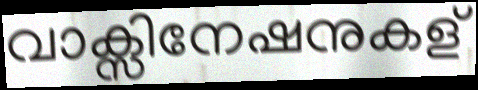
വാക്സിനേഷനുകള്